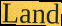
Land